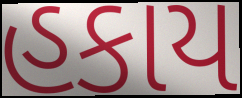
હકાય